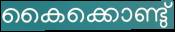
കൈക്കൊണ്ടു്